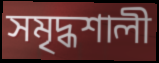
সমৃদ্ধশালী